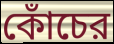
কোঁচের